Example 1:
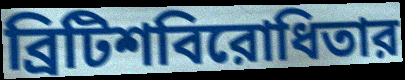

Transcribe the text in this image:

ব্রিটিশবিরোধিতার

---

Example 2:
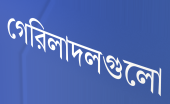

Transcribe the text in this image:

গেরিলাদলগুলো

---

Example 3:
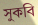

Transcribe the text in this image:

সুকবি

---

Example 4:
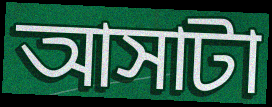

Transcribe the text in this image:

আসাটা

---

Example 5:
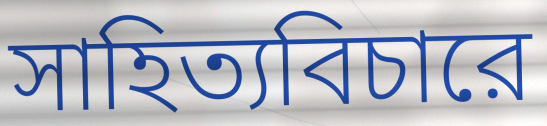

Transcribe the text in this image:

সাহিত্যবিচারে